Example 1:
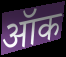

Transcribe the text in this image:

ऑक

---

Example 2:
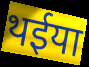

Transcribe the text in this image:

थईया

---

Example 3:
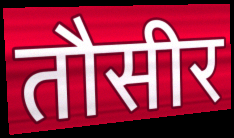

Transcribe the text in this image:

तौसीर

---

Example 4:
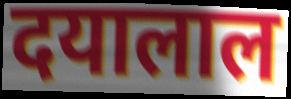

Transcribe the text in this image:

दयालाल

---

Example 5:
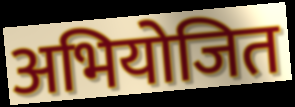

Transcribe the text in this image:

अभियोजित